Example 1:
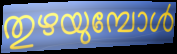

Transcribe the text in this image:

തുഴയുമ്പോൾ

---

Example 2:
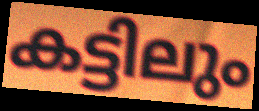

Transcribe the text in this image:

കട്ടിലും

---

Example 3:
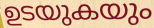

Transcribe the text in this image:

ഉടയുകയും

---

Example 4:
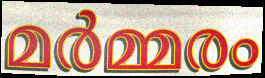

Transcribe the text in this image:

മർമ്മരം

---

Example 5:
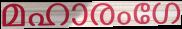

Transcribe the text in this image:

മഹാരംഗേ